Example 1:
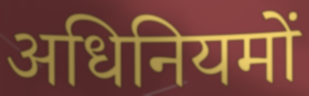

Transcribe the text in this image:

अधिनियमों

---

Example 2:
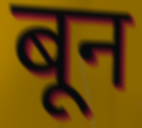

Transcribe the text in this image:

बून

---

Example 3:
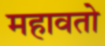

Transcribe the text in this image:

महावतो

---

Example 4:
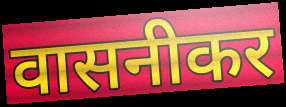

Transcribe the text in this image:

वासनीकर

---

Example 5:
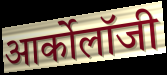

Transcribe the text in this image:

आर्कोलॉजी